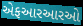
એફઆરઆરઓ